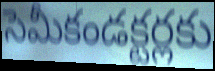
సెమీకండక్టర్లకు